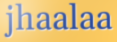
jhaalaa